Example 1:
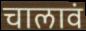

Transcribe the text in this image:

चालावं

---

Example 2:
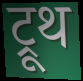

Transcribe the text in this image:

ट्रूथ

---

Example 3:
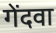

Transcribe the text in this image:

गेंदवा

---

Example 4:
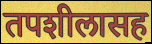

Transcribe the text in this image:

तपशीलासह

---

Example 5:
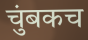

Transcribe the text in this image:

चुंबकच